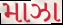
માઝા